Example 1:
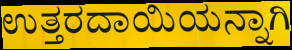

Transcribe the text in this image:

ಉತ್ತರದಾಯಿಯನ್ನಾಗಿ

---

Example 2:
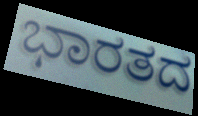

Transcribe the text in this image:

ಭಾರತದ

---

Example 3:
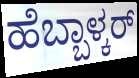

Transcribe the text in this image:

ಹೆಬ್ಬಾಳ್ಕರ್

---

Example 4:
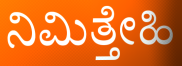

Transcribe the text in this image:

ನಿಮಿತ್ತೇಹಿ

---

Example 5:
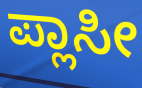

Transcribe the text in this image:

ಪ್ಲಾಸೀ